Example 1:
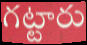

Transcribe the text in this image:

గట్టారు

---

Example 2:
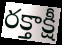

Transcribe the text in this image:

రక్తాక్షీ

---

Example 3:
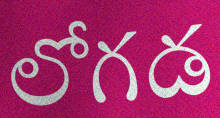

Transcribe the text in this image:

లోగడ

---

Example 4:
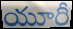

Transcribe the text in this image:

యూరీ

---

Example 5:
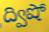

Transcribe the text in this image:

ద్విషో